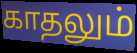
காதலும்